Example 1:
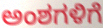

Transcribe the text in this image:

ಅಂಶಗಳಿಗೆ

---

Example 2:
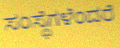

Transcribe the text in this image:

ಸಂಸ್ಥೆಗಳೆಂದರೆ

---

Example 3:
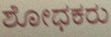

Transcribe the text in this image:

ಶೋಧಕರು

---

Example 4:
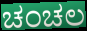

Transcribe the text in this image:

ಚಂಚಲ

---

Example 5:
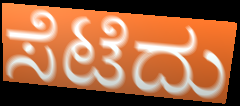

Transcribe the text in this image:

ಸೆಟೆದು